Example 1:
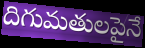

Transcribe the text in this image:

దిగుమతులపైనే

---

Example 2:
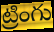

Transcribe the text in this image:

ట్రింగు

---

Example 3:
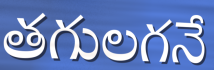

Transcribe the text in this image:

తగులగనే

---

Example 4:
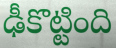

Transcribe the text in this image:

ఢీకొట్టింది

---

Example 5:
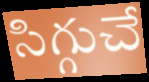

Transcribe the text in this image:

సిగ్గుచే